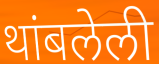
थांबलेली